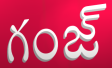
గంజ్